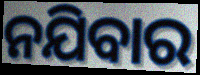
ନଯିବାର